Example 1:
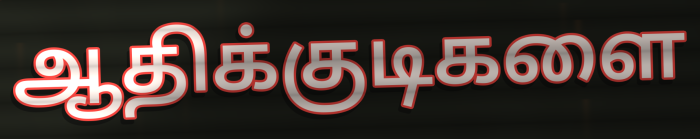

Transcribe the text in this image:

ஆதிக்குடிகளை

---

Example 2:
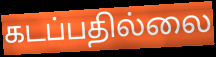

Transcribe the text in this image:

கடப்பதில்லை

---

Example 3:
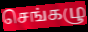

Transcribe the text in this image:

செங்கழு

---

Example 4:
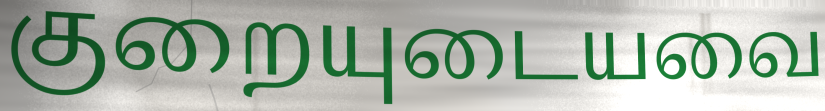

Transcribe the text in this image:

குறையுடையவை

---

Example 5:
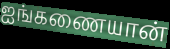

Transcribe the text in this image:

ஐங்கணையான்